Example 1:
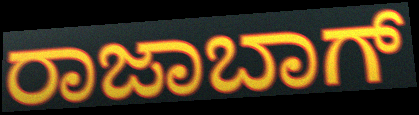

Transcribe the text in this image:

ರಾಜಾಬಾಗ್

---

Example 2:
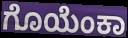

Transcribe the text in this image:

ಗೊಯೆಂಕಾ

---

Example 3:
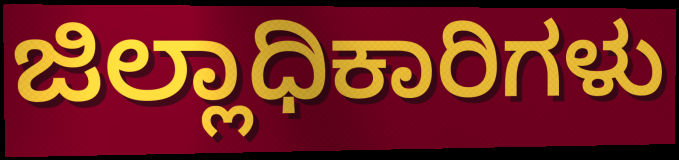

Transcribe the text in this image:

ಜಿಲ್ಲಾಧಿಕಾರಿಗಳು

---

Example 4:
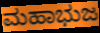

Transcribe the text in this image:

ಮಹಾಭುಜ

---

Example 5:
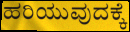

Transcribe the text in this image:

ಹರಿಯುವುದಕ್ಕೆ